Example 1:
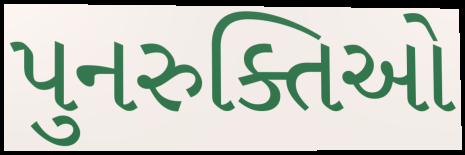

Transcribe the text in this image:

પુનરુક્તિઓ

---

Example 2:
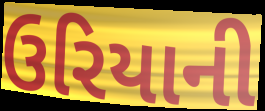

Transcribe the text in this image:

ઉરિયાની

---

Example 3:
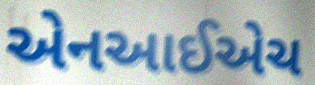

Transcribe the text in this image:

એનઆઈએચ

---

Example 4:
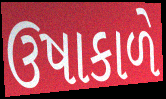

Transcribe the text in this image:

ઉષાકાળે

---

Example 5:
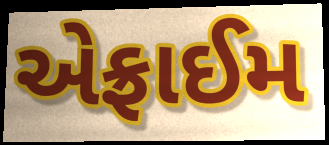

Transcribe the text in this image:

એફ્રાઈમ